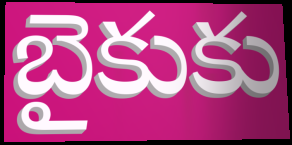
బైకుకు